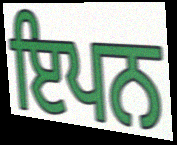
ਇਪਨ